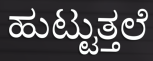
ಹುಟ್ಟುತ್ತಲೆ